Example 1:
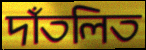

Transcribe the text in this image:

দাঁতলিত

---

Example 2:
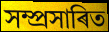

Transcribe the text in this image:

সম্প্ৰসাৰিত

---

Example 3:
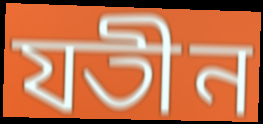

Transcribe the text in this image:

যতীন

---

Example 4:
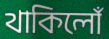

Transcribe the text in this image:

থাকিলোঁ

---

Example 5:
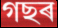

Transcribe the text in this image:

গছৰ